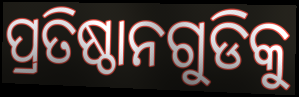
ପ୍ରତିଷ୍ଠାନଗୁଡିକୁ